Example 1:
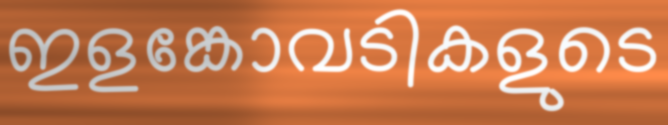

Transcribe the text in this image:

ഇളങ്കോവടികളുടെ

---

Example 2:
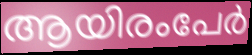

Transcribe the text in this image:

ആയിരംപേർ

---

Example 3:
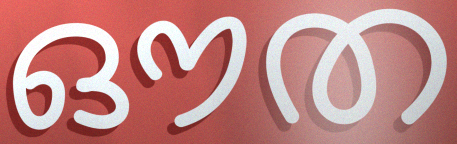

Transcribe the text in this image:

ഔത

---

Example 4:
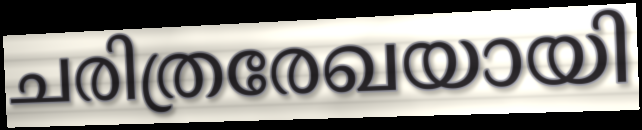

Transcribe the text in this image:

ചരിത്രരേഖയായി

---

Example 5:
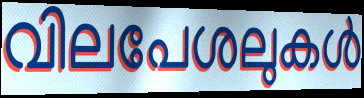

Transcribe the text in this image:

വിലപേശലുകൾ